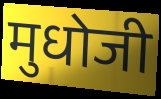
मुधोजी